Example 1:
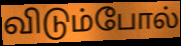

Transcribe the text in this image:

விடும்போல்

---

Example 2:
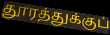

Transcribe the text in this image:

தூரத்துக்குப்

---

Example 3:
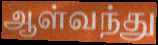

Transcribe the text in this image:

ஆள்வந்து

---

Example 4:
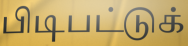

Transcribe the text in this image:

பிடிபட்டுக்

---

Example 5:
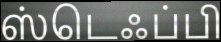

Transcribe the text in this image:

ஸ்டெஃப்பி